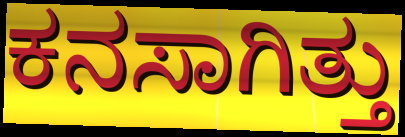
ಕನಸಾಗಿತ್ತು